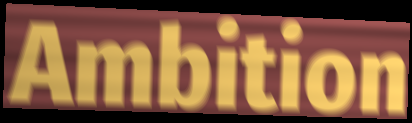
Ambition